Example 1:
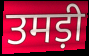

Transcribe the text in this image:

उमड़ी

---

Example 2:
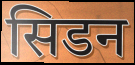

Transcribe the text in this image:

सिडन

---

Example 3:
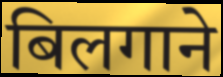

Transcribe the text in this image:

बिलगाने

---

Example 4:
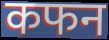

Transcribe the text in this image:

कफन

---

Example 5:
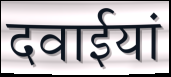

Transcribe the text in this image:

दवाईयां